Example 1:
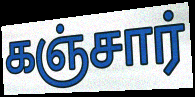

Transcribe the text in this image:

கஞ்சார்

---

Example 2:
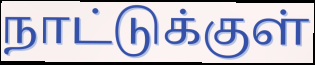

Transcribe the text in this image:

நாட்டுக்குள்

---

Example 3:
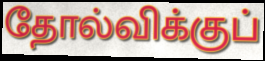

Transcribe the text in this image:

தோல்விக்குப்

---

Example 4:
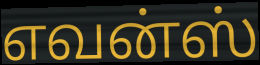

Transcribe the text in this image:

எவன்ஸ்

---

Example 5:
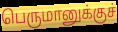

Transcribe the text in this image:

பெருமானுக்குச்